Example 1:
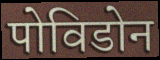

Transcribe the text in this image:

पोविडोन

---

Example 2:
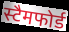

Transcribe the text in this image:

स्टैमफोर्ड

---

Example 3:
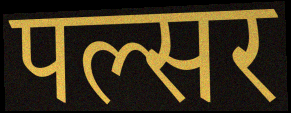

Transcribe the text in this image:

पल्सर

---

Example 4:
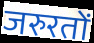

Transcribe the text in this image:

जरुरतों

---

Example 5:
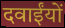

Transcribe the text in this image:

दवाईंयों